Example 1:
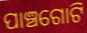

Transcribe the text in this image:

ପାଞ୍ଚଗୋଟି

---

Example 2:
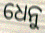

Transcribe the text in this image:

ଧେନୁ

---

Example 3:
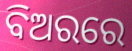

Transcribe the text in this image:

ବିଅରରେ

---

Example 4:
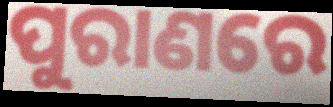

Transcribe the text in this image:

ପୁରାଣରେ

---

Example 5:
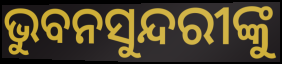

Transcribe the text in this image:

ଭୁବନସୁନ୍ଦରୀଙ୍କୁ